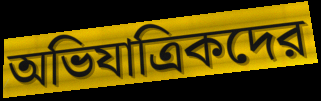
অভিযাত্রিকদের